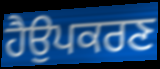
ਹੈਉਪਕਰਣ